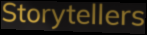
Storytellers